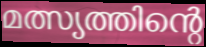
മത്സ്യത്തിന്റെ